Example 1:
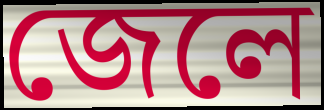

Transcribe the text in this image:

জেলে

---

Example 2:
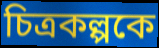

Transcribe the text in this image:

চিত্রকল্পকে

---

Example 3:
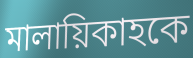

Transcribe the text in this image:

মালায়িকাহকে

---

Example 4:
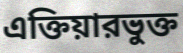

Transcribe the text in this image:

এক্তিয়ারভুক্ত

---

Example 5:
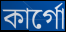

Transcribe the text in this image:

কার্গো